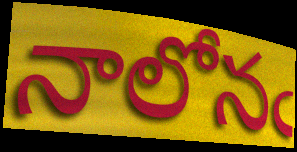
నాలోనఁ